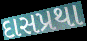
દાસપ્રથા